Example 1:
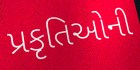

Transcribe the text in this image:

પ્રકૃતિઓની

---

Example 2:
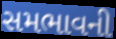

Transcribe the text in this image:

સમભાવની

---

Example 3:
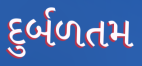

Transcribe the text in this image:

દુર્બળતમ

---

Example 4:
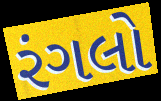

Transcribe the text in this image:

રંગલો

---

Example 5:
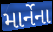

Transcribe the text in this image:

માર્નેના